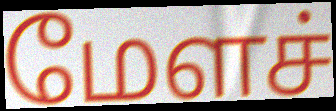
மேளச்